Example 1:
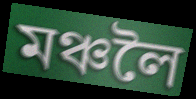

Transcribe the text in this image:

মঞ্চলৈ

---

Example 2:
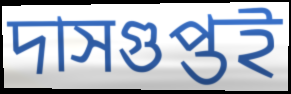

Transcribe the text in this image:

দাসগুপ্তই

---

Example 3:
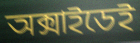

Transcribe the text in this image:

অক্সাইডেই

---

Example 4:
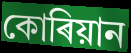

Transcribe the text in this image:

কোৰিয়ান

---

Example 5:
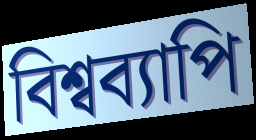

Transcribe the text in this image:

বিশ্বব্যাপি